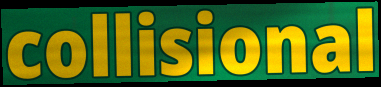
collisional